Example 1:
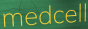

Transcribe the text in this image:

medcell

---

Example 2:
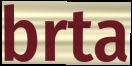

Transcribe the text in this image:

brta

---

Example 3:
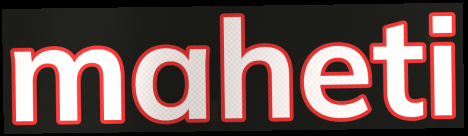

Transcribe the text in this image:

maheti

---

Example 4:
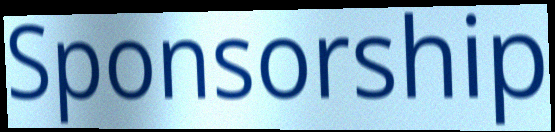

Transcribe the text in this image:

Sponsorship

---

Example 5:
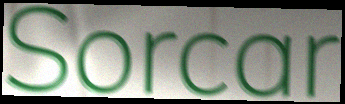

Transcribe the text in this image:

Sorcar